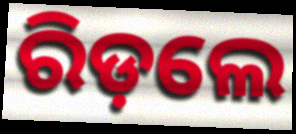
ରିଡ଼ଲେ